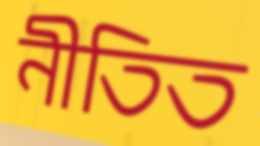
নীতিত